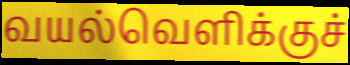
வயல்வெளிக்குச்